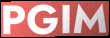
PGIM